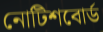
নোটিশবোর্ড